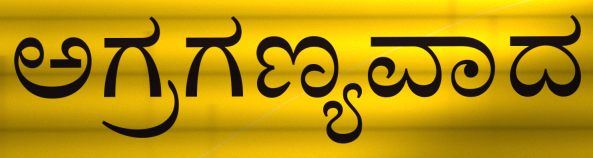
ಅಗ್ರಗಣ್ಯವಾದ